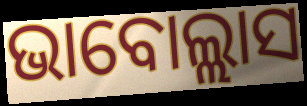
ଭାବୋଲ୍ଲାସ